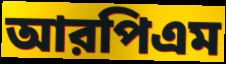
আরপিএম